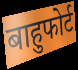
बाहुफोर्ट